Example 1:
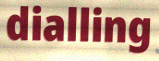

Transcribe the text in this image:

dialling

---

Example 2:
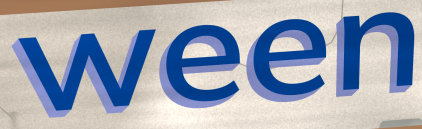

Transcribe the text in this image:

ween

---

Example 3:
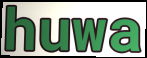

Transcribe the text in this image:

huwa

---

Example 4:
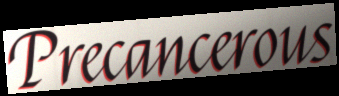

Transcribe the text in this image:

Precancerous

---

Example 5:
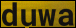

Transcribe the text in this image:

duwa